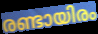
രണ്ടായിരം